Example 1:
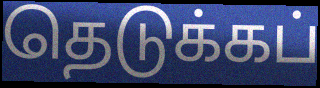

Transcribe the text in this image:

தெடுக்கப்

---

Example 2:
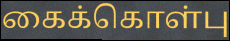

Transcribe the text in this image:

கைக்கொள்பு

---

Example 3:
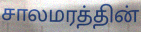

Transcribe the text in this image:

சாலமரத்தின்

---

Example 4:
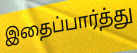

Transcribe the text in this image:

இதைப்பார்த்து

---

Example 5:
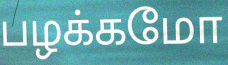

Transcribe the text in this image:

பழக்கமோ